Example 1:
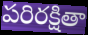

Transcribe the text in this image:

పరిరక్షితా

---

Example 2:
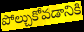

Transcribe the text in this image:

పోల్చుకోవడానికి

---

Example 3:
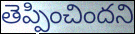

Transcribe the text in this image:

తెప్పించిందని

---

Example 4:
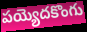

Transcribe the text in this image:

పయ్యెదకొంగు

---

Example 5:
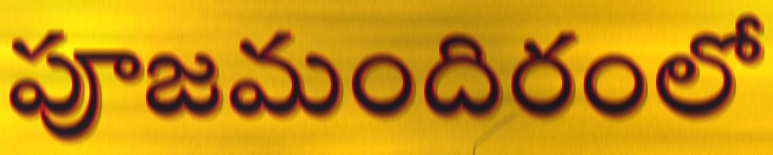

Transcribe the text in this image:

పూజమందిరంలో